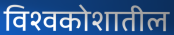
विश्वकोशातील